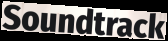
Soundtrack